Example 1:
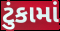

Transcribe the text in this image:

ટુંકામાં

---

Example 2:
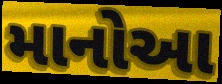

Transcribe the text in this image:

માનોઆ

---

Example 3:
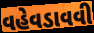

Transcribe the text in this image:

વહેવડાવવી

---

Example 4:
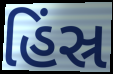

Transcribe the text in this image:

હિંસ્ર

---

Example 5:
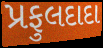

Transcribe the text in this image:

પ્રફુલદાદા